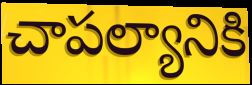
చాపల్యానికి